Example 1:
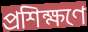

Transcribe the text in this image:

প্রশিক্ষণে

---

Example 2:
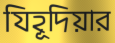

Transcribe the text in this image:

যিহূদিয়ার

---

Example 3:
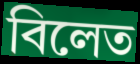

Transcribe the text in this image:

বিলেত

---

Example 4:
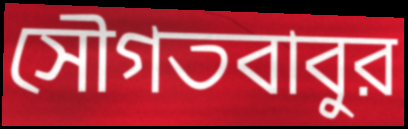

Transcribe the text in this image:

সৌগতবাবুর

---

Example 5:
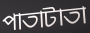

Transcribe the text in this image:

পাতাটাতা